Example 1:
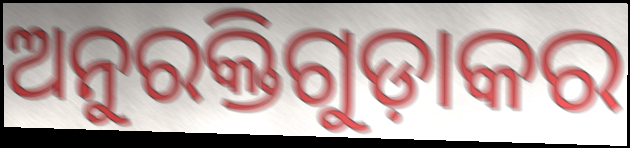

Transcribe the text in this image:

ଅନୁରକ୍ତିଗୁଡ଼ାକର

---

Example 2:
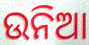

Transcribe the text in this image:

ଉନିଆ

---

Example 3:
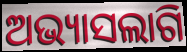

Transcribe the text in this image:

ଅଭ୍ୟାସଲାଗି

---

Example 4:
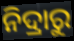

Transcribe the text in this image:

ନିଦ୍ରାରୁ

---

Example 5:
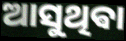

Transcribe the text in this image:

ଆସୁଥିଵା